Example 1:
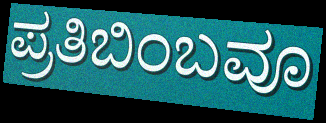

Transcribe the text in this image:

ಪ್ರತಿಬಿಂಬವೂ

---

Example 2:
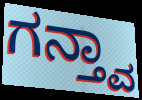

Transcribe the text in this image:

ಗನ್ತ್ವಾ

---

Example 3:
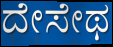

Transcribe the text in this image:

ದೇಸೇಥ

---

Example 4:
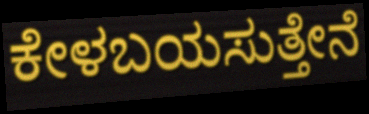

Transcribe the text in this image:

ಕೇಳಬಯಸುತ್ತೇನೆ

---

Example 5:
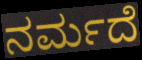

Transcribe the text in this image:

ನರ್ಮದೆ